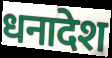
धनादेश